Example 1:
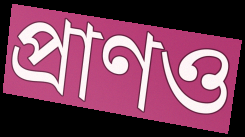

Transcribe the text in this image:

প্রাণও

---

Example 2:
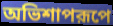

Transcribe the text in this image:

অভিশাপরূপে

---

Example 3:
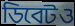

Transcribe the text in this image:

ডিবেটও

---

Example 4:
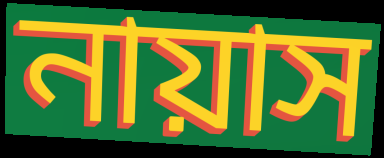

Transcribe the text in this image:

নায়াস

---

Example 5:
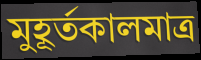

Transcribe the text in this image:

মুহূর্তকালমাত্র